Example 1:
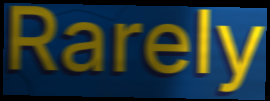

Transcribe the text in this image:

Rarely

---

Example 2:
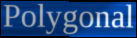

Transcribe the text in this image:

Polygonal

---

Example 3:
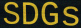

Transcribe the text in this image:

SDGs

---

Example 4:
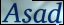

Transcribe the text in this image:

Asad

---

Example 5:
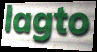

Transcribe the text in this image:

lagto